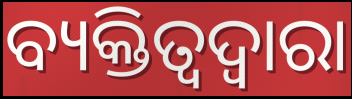
ବ୍ୟକ୍ତିତ୍ୱଦ୍ୱାରା